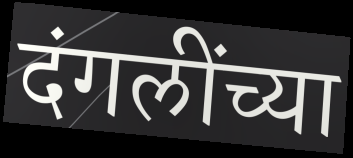
दंगलींच्या